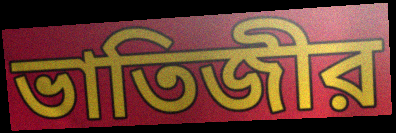
ভাতিজীর